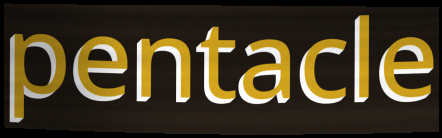
pentacle